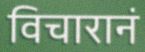
विचारानं